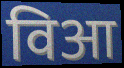
विआ